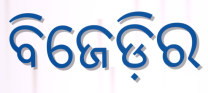
ବିଜେଡ଼ିର